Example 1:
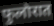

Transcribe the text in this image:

फुलोरात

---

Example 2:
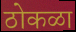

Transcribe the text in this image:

ठोकळा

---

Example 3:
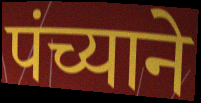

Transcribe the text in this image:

पंच्याने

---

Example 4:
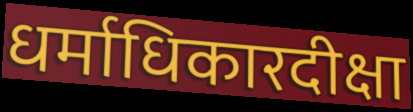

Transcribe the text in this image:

धर्माधिकारदीक्षा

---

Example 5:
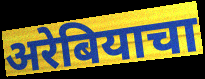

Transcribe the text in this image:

अरेबियाचा